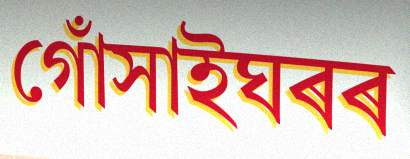
গোঁসাইঘৰৰ